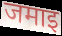
जमाइ